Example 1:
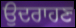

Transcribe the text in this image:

ਉਦਰਾਹਣ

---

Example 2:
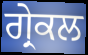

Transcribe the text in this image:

ਗ੍ਰੇਕਲ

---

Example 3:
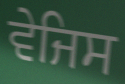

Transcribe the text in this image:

ਵੇਜਿਸ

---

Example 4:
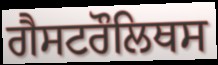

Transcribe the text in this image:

ਗੈਸਟਰੌਲਿਥਸ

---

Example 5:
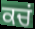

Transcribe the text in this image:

ਕਚਂ